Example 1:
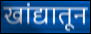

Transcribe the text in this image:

खांद्यातून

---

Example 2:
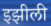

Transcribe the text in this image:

इझीली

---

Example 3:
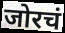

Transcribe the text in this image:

जोरचं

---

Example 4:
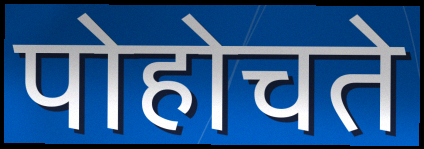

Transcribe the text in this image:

पोहोचते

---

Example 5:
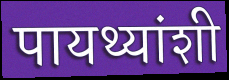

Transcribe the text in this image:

पायथ्यांशी